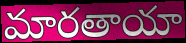
మారతాయా